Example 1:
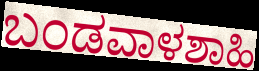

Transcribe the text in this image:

ಬಂಡವಾಳಶಾಹಿ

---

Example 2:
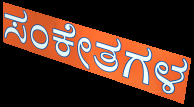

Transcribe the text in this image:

ಸಂಕೇತಗಳ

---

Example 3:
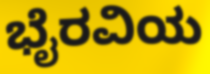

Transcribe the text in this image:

ಭೈರವಿಯ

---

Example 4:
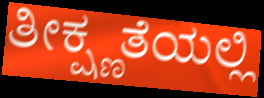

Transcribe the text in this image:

ತೀಕ್ಷ್ಣತೆಯಲ್ಲಿ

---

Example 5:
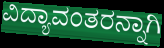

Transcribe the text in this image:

ವಿದ್ಯಾವಂತರನ್ನಾಗಿ